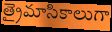
త్రైమాసికాలుగా